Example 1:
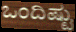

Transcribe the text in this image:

ಒಂದಿಷ್ಟು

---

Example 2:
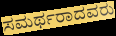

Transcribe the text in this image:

ಸಮರ್ಥರಾದವರು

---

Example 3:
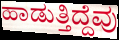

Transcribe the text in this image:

ಹಾಡುತ್ತಿದ್ದೆವು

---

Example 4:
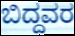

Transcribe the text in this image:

ಬಿದ್ದವರ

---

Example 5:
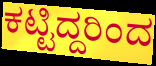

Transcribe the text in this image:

ಕಟ್ಟಿದ್ದರಿಂದ